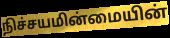
நிச்சயமின்மையின்